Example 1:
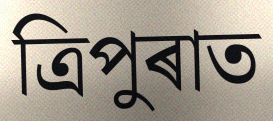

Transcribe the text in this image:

ত্ৰিপুৰাত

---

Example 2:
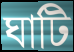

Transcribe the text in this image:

ঘাটি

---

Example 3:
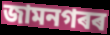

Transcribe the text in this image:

জামনগৰৰ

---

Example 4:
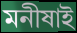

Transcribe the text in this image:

মনীষাই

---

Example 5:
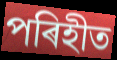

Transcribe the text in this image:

পৰিহীত